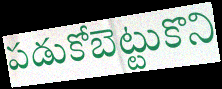
పడుకోబెట్టుకొని